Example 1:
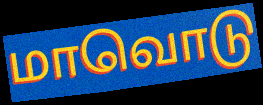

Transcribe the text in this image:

மாவொடு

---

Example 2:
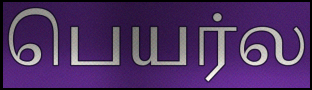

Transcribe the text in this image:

பெயர்ல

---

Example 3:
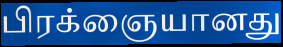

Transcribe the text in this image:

பிரக்ஞையானது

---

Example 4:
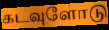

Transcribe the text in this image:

கடவுளோடு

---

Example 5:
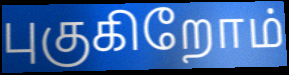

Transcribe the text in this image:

புகுகிறோம்